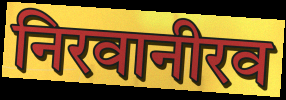
निरवानीरव